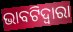
ଭାବଟିଦ୍ୱାରା